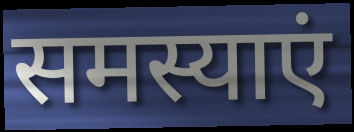
समस्याएं